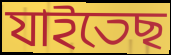
যাইতেছ